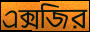
এক্সজির